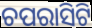
ଚପରାସିଟି